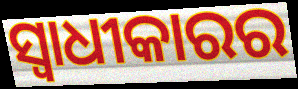
ସ୍ୱାଧୀକାରର